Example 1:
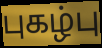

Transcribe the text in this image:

புகழ்பு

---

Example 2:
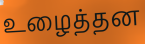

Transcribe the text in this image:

உழைத்தன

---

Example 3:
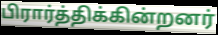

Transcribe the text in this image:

பிரார்த்திக்கின்றனர்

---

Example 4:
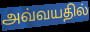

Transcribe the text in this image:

அவ்வயதில்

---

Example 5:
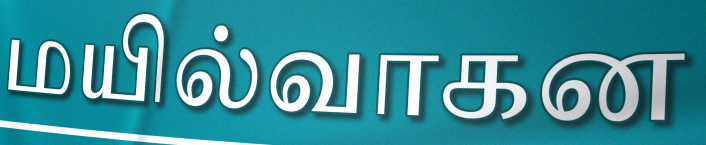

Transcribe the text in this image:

மயில்வாகன